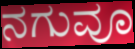
ನಗುವೂ